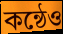
কন্ঠেও